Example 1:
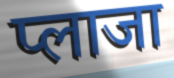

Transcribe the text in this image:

प्‍लाजा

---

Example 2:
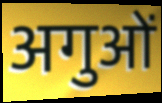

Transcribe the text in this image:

अगुओं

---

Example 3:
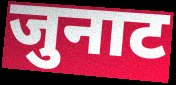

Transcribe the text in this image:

जुनाट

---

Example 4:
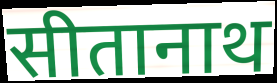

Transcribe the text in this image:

सीतानाथ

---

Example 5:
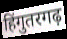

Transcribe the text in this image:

हिंगुतरगढ़